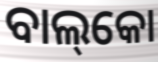
ବାଲ୍‌କୋ